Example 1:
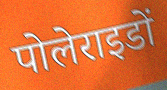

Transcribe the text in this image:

पोलेराइडों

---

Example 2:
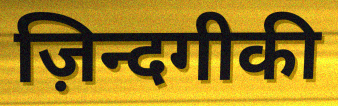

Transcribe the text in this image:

ज़िन्दगीकी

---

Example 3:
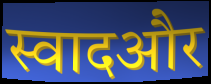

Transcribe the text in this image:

स्वादऔर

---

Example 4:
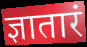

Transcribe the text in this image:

ज्ञातारं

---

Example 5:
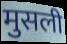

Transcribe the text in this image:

मुसली